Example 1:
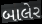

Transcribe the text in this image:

બાલેર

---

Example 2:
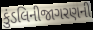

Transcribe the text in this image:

કુંડલિનીજાગરણની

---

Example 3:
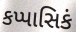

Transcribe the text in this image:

કપ્પાસિકં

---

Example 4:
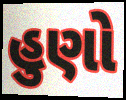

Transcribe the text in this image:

હુણો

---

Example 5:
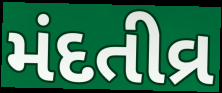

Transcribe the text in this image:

મંદતીવ્ર